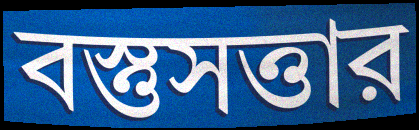
বস্তুসত্তার